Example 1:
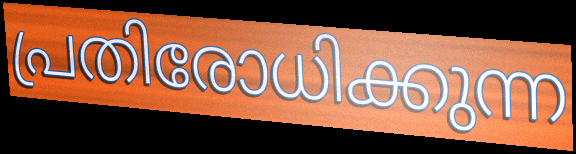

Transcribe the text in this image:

പ്രതിരോധിക്കുന്ന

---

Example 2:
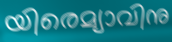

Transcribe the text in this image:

യിരെമ്യാവിനു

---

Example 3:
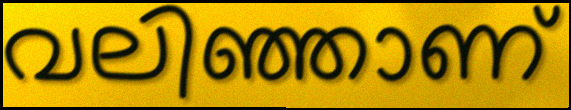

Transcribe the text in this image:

വലിഞ്ഞാണ്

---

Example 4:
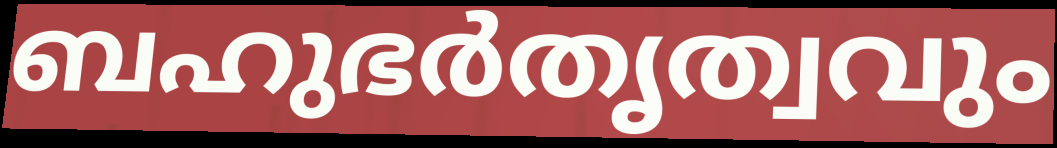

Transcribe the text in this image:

ബഹുഭർതൃത്വവും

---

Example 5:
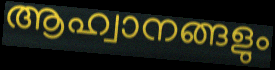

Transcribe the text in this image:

ആഹ്വാനങ്ങളും